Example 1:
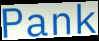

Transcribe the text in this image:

Pank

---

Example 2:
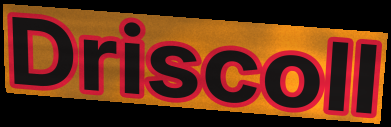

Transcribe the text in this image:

Driscoll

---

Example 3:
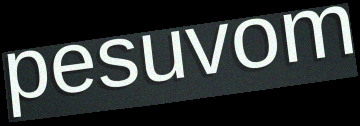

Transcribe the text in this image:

pesuvom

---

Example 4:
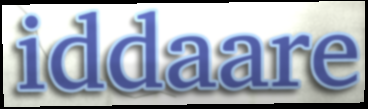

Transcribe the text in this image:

iddaare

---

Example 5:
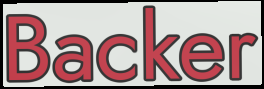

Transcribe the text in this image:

Backer